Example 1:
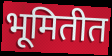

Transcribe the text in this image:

भूमितीत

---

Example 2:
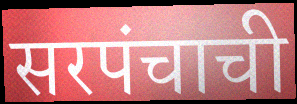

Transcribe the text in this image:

सरपंचाची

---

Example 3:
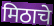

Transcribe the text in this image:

मिठाचे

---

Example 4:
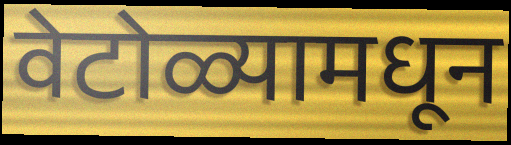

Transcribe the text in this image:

वेटोळ्यामधून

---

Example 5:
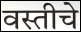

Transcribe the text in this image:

वस्तीचे